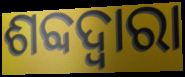
ଶବ୍ଦଦ୍ୱାରା